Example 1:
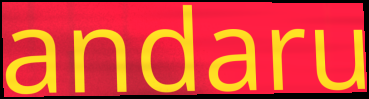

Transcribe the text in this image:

andaru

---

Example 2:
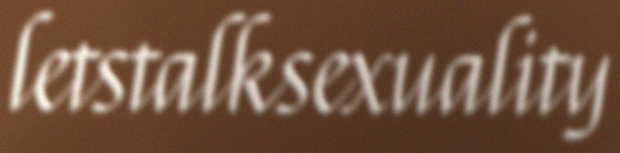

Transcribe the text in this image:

letstalksexuality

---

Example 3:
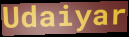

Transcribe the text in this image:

Udaiyar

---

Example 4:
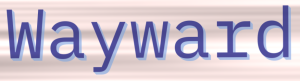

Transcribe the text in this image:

Wayward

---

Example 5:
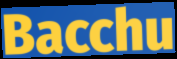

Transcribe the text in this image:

Bacchu